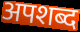
अपशब्द